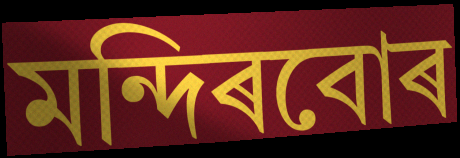
মন্দিৰবোৰ